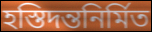
হস্তিদন্তনির্মিত